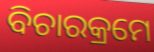
ବିଚାରକ୍ରମେ